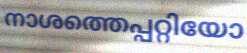
നാശത്തെപ്പറ്റിയോ